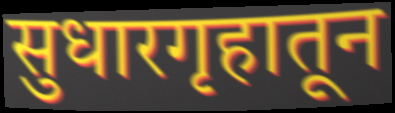
सुधारगृहातून